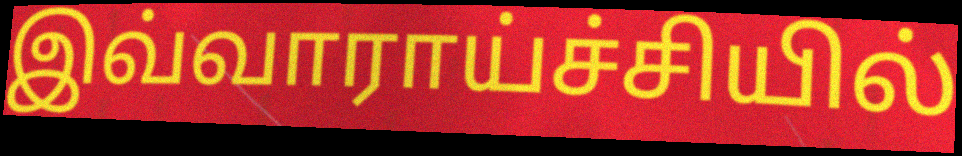
இவ்வாராய்ச்சியில்